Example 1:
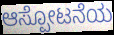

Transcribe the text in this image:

ಆಸ್ಪೋಟನೆಯ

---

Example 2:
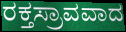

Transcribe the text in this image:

ರಕ್ತಸ್ರಾವವಾದ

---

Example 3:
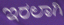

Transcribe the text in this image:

ಇರಲಾಗಿ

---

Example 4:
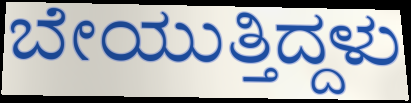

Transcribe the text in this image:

ಬೇಯುತ್ತಿದ್ದಳು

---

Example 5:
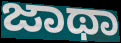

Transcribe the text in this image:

ಜಾಥಾ